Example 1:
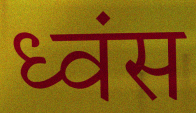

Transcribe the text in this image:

ध्वंस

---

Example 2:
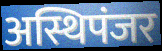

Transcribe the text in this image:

अस्थिपंजर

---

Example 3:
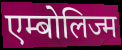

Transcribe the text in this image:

एम्बोलिज्म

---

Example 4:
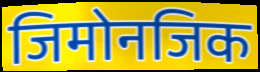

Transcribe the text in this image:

जिमोनजिक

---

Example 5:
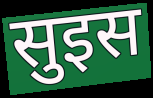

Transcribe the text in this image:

सुइस